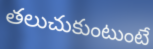
తలుచుకుంటుంటే